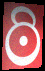
ఠి